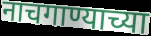
नाचगाण्याच्या